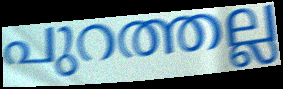
പുറത്തല്ല